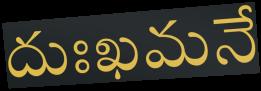
దుఃఖమనే